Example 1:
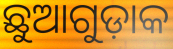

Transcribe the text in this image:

ଛୁଆଗୁଡ଼ାକ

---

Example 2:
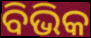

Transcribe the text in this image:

ବିଭିକ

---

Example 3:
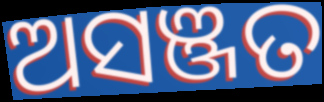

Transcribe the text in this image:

ଅସଞ୍ଜତ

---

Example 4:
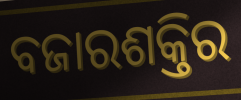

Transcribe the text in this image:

ବଜାରଶକ୍ତିର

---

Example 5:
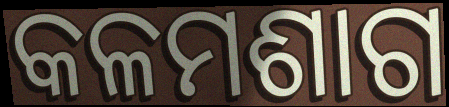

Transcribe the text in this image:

କଳମଶାଗ